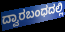
ದ್ವಾರಬಂಧದಲ್ಲಿ